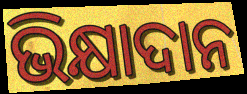
ଭିକ୍ଷାଦାନ